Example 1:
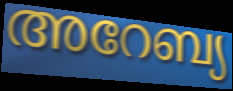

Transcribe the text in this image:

അറേബ്യ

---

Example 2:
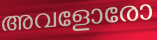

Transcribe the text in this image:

അവളോരോ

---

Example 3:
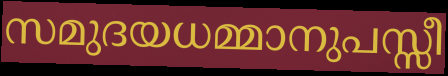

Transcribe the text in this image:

സമുദയധമ്മാനുപസ്സീ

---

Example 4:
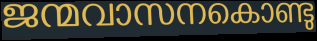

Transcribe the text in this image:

ജന്മവാസനകൊണ്ടു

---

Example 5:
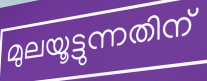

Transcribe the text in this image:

മുലയൂട്ടുന്നതിന്